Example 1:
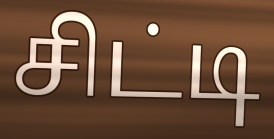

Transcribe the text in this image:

சிட்டி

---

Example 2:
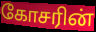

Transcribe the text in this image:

கோசரின்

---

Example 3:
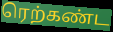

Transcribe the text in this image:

ரெற்கண்ட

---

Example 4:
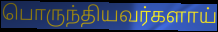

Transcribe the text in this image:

பொருந்தியவர்களாய்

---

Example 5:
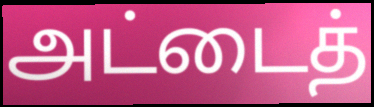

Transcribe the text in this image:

அட்டைத்